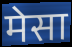
मेसा